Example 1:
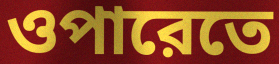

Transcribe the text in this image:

ওপারেতে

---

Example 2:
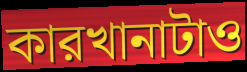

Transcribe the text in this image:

কারখানাটাও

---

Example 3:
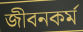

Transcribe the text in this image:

জীবনকর্ম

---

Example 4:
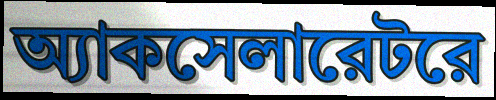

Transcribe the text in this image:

অ্যাকসেলারেটরে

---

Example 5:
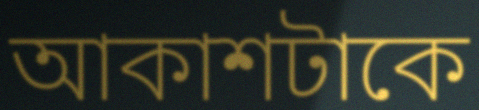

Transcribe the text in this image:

আকাশটাকে